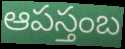
ఆపస్తంబ